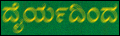
ದೈರ್ಯದಿಂದ